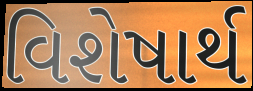
વિશેષાર્થ